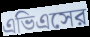
এভিএসের